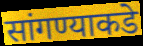
सांगण्याकडे